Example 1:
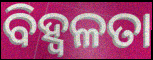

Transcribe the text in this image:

ବିହ୍ଵଳତା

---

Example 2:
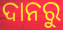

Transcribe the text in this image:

ଦାନରୁ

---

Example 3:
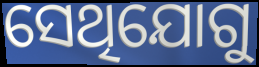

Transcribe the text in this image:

ସେଥିଯୋଗୁ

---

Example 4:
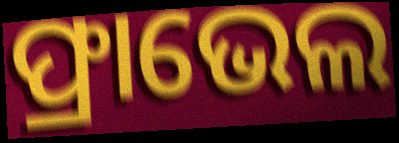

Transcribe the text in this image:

ଫ୍ରାଭେଲ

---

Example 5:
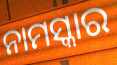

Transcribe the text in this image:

ନାମସ୍କାର